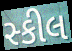
સ્કીલ